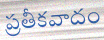
ప్రతీకవాదం